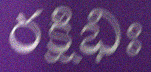
రక్షిభిః